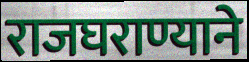
राजघराण्याने